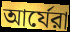
আর্যেরা